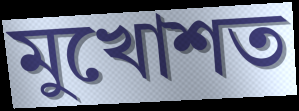
মুখোশত